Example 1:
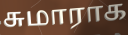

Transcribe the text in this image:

சுமாராக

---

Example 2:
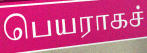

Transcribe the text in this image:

பெயராகச்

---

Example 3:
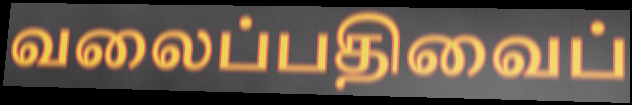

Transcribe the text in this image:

வலைப்பதிவைப்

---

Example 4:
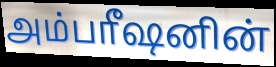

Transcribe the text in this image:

அம்பரீஷனின்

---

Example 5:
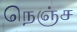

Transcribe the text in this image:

நெஞ்ச